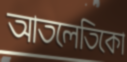
আতলেতিকো